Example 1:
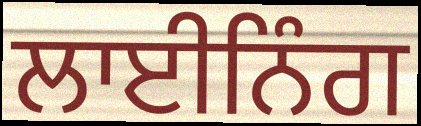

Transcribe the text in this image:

ਲਾਈਨਿੰਗ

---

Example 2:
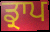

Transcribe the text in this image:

ਡ੍ਰਾਪ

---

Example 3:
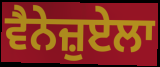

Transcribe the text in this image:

ਵੈਨੇਜ਼ੁਏਲਾ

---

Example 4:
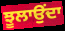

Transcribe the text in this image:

ਝੂਲਾਉਂਦਾ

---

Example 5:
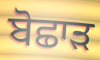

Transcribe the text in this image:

ਬੋਛਾੜ